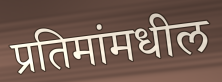
प्रतिमांमधील